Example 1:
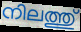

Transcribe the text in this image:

നിലത്തു്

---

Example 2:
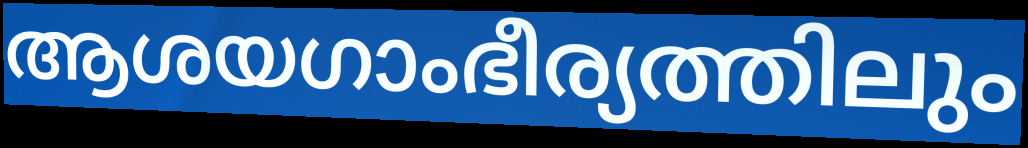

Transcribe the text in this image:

ആശയഗാംഭീര്യത്തിലും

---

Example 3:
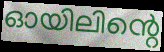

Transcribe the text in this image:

ഓയിലിന്റെ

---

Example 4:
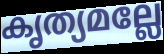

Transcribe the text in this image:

കൃത്യമല്ലേ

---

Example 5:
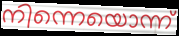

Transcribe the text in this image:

നിന്നെയൊന്ന്